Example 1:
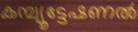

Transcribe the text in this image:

കമ്പ്യൂട്ടേഷണൽ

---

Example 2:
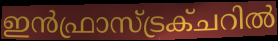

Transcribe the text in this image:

ഇൻഫ്രാസ്ട്രക്ചറിൽ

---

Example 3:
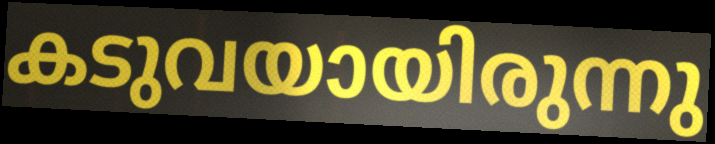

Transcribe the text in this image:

കടുവയായിരുന്നു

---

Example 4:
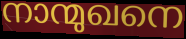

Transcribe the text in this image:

നാന്മുഖനെ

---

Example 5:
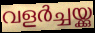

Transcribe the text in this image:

വളർച്ചയ്ക്കു